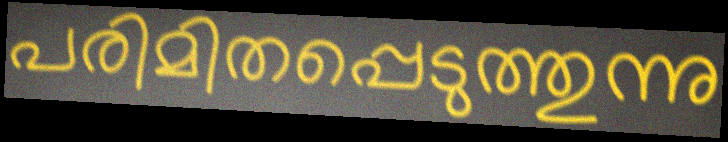
പരിമിതപ്പെടുത്തുന്നു